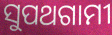
ସୁପଥଗାମୀ